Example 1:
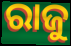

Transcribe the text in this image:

ରାଜୁ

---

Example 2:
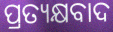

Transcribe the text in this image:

ପ୍ରତ୍ୟକ୍ଷବାଦ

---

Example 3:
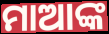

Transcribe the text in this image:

ମାଆଙ୍କ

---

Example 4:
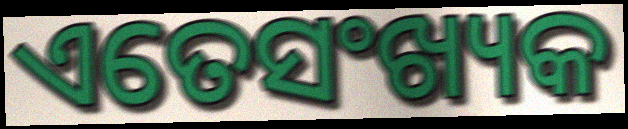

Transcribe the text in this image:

ଏତେସଂଖ୍ୟକ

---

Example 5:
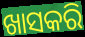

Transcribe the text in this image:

ଖାସକରି